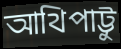
আথিপাট্টু